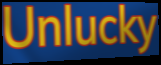
Unlucky